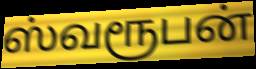
ஸ்வரூபன்